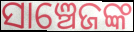
ସାଞ୍ଚେଜଙ୍କ